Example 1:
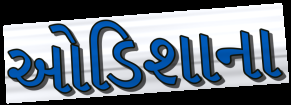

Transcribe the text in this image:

ઓડિશાના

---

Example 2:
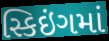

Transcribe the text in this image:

સ્કિઇંગમાં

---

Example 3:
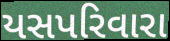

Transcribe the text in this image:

યસપરિવારા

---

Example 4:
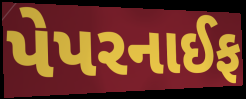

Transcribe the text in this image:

પેપરનાઈફ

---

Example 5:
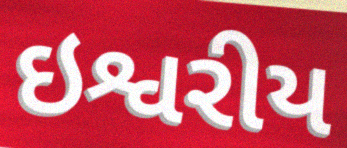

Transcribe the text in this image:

ઇશ્વરીય